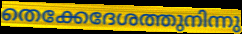
തെക്കേദേശത്തുനിന്നു